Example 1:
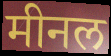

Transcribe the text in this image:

मीनल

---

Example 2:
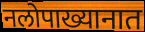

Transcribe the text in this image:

नलोपाख्यानात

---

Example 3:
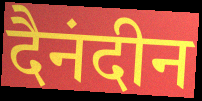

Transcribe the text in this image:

दैनंदीन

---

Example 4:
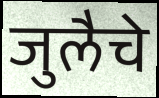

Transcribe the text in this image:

जुलैचे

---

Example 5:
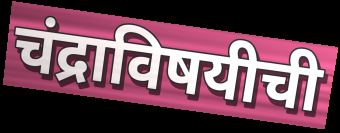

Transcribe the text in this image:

चंद्राविषयीची